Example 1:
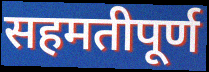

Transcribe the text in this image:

सहमतीपूर्ण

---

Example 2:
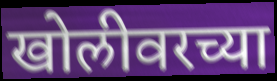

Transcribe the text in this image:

खोलीवरच्या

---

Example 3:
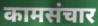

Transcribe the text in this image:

कामसंचार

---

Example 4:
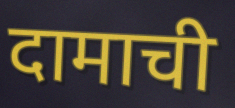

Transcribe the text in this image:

दामाची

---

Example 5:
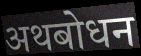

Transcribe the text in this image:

अथबोधन